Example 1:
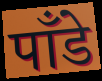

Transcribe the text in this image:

पाँडे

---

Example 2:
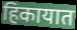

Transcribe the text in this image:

हिकायात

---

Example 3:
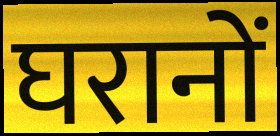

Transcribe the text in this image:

घरानों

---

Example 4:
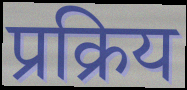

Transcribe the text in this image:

प्रक्रिय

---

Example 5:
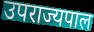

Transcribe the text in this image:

उपराज्यपाल